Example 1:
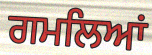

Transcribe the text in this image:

ਗਮਲਿਆਂ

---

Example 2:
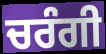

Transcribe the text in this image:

ਚਰੰਗੀ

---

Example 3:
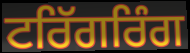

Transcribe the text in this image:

ਟਰਿੱਗਰਿੰਗ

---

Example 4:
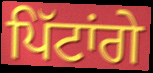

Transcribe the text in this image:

ਪਿੱਟਾਂਗੇ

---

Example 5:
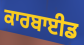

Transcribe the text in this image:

ਕਾਰਬਾਈਡ